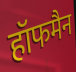
हॉफमैन